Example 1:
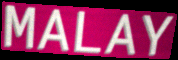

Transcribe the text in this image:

MALAY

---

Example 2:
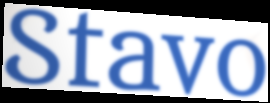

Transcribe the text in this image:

Stavo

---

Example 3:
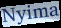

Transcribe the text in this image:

Nyima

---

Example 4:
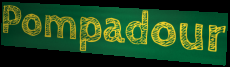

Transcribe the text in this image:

Pompadour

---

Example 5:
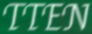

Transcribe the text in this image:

TTEN